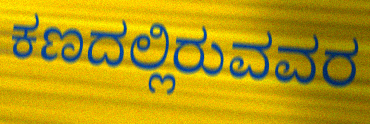
ಕಣದಲ್ಲಿರುವವರ